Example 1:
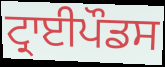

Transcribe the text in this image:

ਟ੍ਰਾਈਪੌਡਸ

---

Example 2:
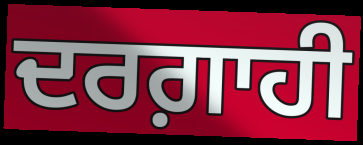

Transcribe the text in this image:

ਦਰਗ਼ਾਹੀ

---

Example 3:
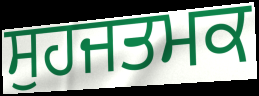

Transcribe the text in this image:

ਸੁਹਜਤਮਕ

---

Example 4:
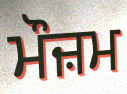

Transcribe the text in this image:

ਮੌਜ਼ਮ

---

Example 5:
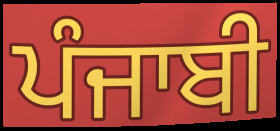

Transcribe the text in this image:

ਪੰਜਾਬੀ